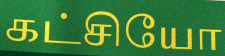
கட்சியோ